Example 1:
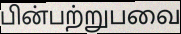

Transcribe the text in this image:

பின்பற்றுபவை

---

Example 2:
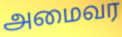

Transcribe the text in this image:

அமைவர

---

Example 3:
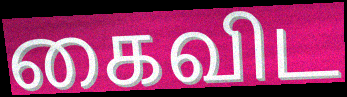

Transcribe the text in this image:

கைவிட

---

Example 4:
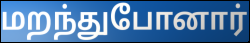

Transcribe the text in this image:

மறந்துபோனார்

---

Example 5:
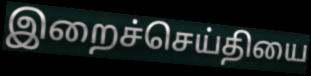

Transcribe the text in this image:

இறைச்செய்தியை